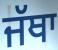
ਜੱਥਾ